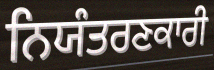
ਨਿਯੰਤਰਣਕਾਰੀ